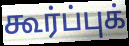
கூர்ப்புக்